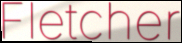
Fletcher